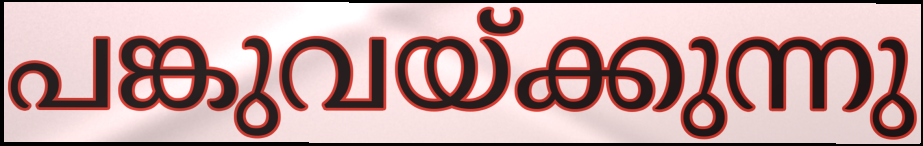
പങ്കുവയ്ക്കുന്നു